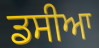
ਡਸੀਆ